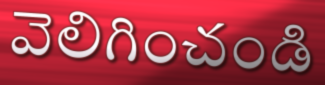
వెలిగించండి